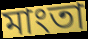
মাংতা